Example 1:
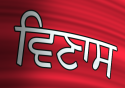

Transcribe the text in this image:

ਵਿਣਾਸ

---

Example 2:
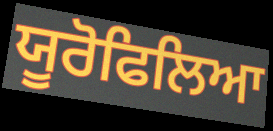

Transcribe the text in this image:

ਯੂਰੋਫਿਲਿਆ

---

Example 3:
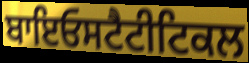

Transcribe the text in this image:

ਬਾਇਓਸਟੈਟੀਟਿਕਲ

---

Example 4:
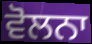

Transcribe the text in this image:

ਵੋਲਨਾ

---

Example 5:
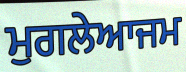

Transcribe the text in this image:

ਮੁਗਲੇਆਜਮ